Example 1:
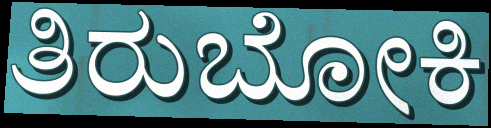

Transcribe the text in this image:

ತಿರುಬೋಕಿ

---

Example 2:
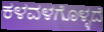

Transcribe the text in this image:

ಕಳವಳಗೊಳ್ಳದೆ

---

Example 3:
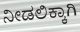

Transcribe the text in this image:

ನೀಡಲಿಕ್ಕಾಗಿ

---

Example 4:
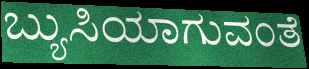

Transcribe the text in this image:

ಬ್ಯುಸಿಯಾಗುವಂತೆ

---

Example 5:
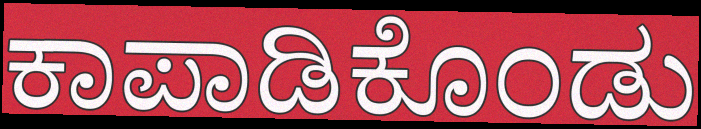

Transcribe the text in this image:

ಕಾಪಾಡಿಕೊಂಡು